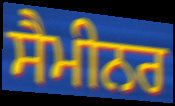
ਸੈਮੀਨਰ